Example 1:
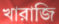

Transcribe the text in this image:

খারাজি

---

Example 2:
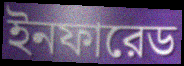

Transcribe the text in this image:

ইনফারেড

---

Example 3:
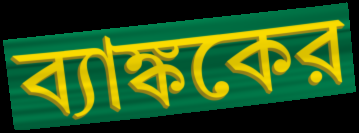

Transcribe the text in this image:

ব্যাঙ্ককের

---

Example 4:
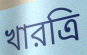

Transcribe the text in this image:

খারত্রি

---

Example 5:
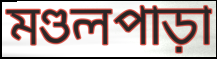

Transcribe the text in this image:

মণ্ডলপাড়া